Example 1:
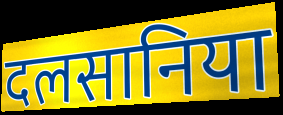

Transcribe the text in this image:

दलसानिया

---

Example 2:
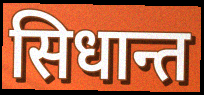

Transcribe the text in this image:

सिधान्त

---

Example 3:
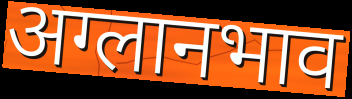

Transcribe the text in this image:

अग्लानभाव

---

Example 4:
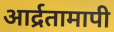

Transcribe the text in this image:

आर्द्रतामापी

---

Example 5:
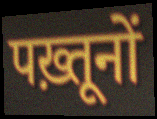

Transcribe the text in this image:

पख़्तूनों